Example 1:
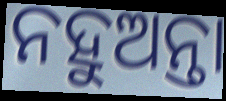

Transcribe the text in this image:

ନହୁଅନ୍ତା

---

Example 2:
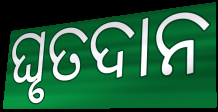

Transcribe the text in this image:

ଘୃତଦାନ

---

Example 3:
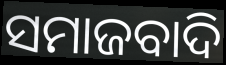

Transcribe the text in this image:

ସମାଜବାଦି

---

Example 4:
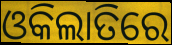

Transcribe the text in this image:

ଓକିଲାତିରେ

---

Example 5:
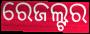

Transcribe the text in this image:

ରେଜଲ୍ଟର